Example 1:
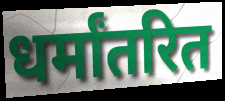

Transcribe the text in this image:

धर्मांतरित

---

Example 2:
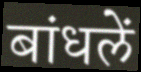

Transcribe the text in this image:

बांधलें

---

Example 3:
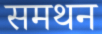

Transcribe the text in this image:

समथन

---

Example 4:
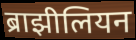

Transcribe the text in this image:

ब्राझीलियन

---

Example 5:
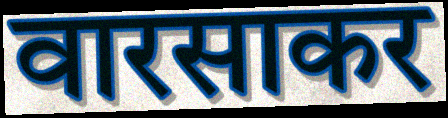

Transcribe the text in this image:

वारसाकर